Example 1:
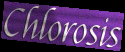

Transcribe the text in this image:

Chlorosis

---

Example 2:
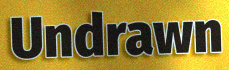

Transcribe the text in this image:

Undrawn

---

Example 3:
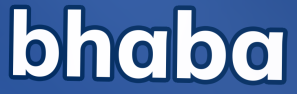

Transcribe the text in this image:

bhaba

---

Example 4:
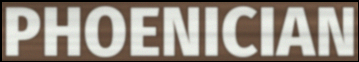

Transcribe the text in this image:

PHOENICIAN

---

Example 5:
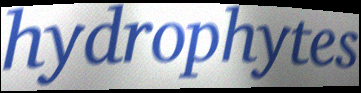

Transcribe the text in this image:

hydrophytes